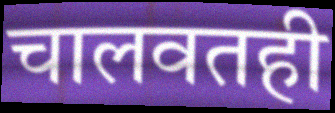
चालवतही